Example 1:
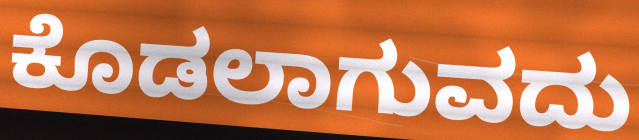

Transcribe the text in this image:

ಕೊಡಲಾಗುವದು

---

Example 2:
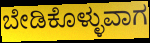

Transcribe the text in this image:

ಬೇಡಿಕೊಳ್ಳುವಾಗ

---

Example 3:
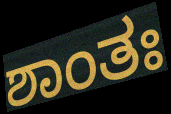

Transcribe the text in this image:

ಶಾಂತಃ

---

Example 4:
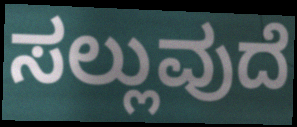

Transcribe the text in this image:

ಸಲ್ಲುವುದೆ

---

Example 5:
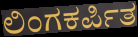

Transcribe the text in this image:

ಲಿಂಗಕರ್ಪಿತ